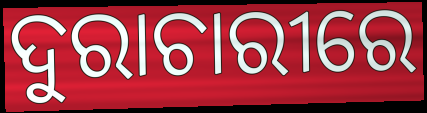
ଦୁରାଚାରୀରେ